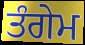
ਤੰਗੇਮ